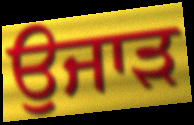
ਉਜਾੜ